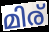
മിര്